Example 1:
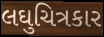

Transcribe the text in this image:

લઘુચિત્રકાર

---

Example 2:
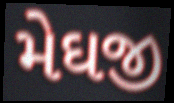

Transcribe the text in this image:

મેઘજી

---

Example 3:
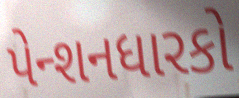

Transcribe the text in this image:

પેન્શનધારકો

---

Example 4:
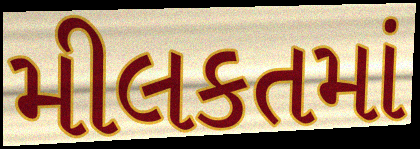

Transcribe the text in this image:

મીલકતમાં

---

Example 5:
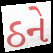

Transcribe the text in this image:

ઠને